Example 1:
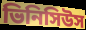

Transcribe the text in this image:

ভিনিসিউস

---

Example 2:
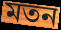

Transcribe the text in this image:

মতন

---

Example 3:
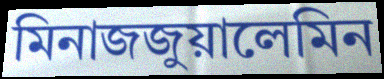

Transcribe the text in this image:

মিনাজজুয়ালেমিন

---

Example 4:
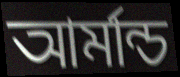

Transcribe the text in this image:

আর্মান্ড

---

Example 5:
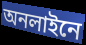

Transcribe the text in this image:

অনলাইনে